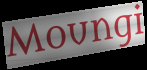
Moungi